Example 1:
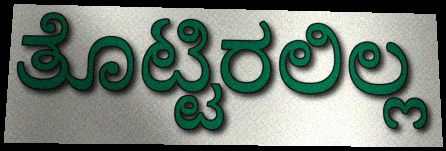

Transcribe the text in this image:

ತೊಟ್ಟಿರಲಿಲ್ಲ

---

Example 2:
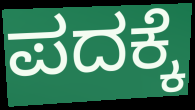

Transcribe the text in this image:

ಪದಕ್ಕೆ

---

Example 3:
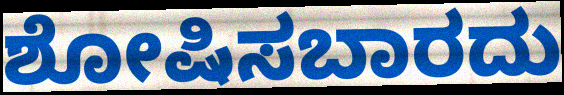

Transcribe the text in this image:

ಶೋಷಿಸಬಾರದು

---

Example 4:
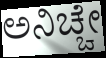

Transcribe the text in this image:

ಅನಿಚ್ಚೇ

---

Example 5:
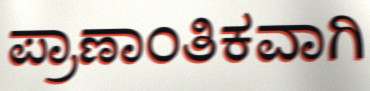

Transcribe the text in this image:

ಪ್ರಾಣಾಂತಿಕವಾಗಿ